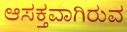
ಆಸಕ್ತವಾಗಿರುವ